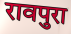
रावपुरा